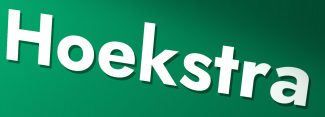
Hoekstra